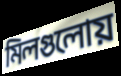
মিলগুলোয়